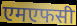
एमएफसी